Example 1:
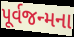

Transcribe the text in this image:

પૂર્વજન્મના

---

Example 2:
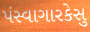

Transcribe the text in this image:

પંસ્વાગારકેસુ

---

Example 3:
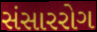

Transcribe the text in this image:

સંસારરોગ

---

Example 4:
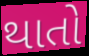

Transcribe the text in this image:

થાતો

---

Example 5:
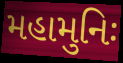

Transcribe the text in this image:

મહામુનિઃ